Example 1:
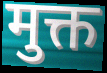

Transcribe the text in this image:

मुक्त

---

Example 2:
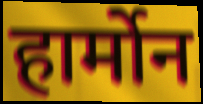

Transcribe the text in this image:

हार्मोन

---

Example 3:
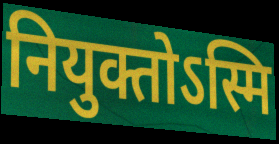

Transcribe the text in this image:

नियुक्तोऽस्मि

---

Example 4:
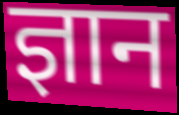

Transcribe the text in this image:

ज्ञान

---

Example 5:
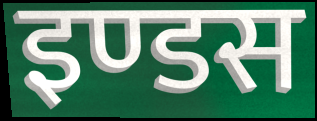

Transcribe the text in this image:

इण्डस